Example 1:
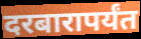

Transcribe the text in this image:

दरबारापर्यंत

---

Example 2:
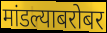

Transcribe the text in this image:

मांडल्याबरोबर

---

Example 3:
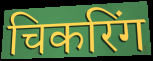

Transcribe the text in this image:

चिकरिंग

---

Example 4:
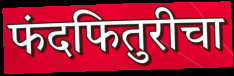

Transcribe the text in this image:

फंदफितुरीचा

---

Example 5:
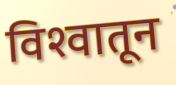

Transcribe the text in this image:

विश्वातून